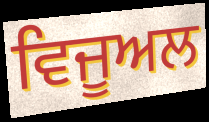
ਵਿਜੂਅਲ